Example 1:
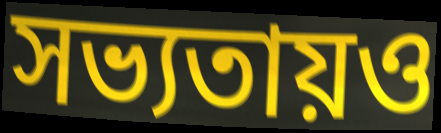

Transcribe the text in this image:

সভ্যতায়ও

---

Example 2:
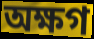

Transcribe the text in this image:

অক্ষগ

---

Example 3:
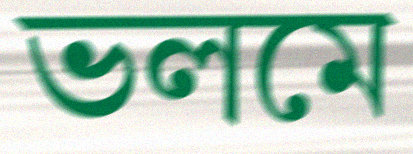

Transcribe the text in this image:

ভলমে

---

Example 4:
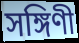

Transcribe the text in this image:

সঙ্গিণী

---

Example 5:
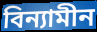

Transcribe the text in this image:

বিন্যামীন